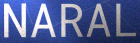
NARAL